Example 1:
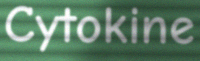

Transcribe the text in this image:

Cytokine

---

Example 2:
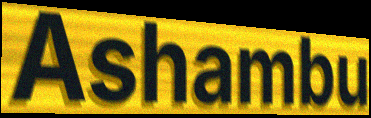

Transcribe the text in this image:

Ashambu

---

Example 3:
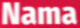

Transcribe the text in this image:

Nama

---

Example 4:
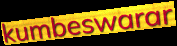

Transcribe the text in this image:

kumbeswarar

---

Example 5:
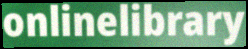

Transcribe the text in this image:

onlinelibrary